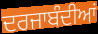
ਦਰਜਾਬੰਦੀਆਂ